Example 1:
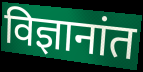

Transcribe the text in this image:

विज्ञानांत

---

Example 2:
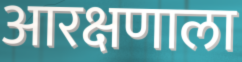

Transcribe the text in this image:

आरक्षणाला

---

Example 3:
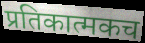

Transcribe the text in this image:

प्रतिकात्मकच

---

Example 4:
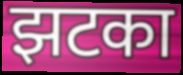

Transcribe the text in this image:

झटका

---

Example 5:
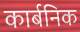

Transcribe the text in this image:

कार्बनिक